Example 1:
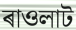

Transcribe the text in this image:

ৰাওলাট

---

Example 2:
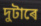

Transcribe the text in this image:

দুটাৰে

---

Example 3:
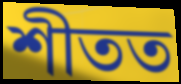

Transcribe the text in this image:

শীতত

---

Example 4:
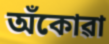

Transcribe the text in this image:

অঁকোৱা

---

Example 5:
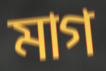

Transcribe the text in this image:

মাগ